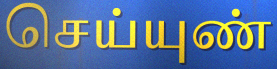
செய்யுண்